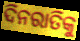
ଦିନରାତିକୁ